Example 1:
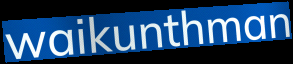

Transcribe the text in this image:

waikunthman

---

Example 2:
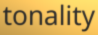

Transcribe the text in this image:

tonality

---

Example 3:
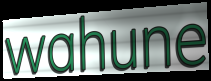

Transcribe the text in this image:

wahune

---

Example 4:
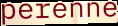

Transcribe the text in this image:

perenne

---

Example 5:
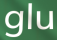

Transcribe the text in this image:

glu